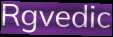
Rgvedic